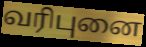
வரிபுனை